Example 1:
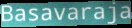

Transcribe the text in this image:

Basavaraja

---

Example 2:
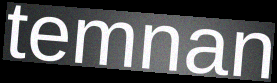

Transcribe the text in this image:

temnan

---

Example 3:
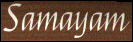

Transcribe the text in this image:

Samayam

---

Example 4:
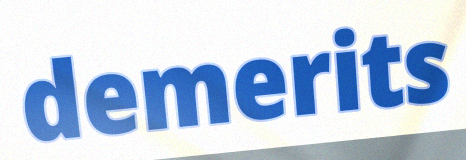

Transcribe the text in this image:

demerits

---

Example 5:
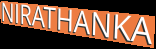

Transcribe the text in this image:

NIRATHANKA